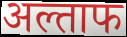
अल्ताफ